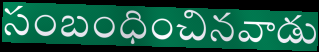
సంబంధించినవాడు